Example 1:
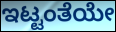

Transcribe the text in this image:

ಇಟ್ಟಂತೆಯೇ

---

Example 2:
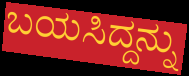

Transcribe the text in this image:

ಬಯಸಿದ್ದನ್ನು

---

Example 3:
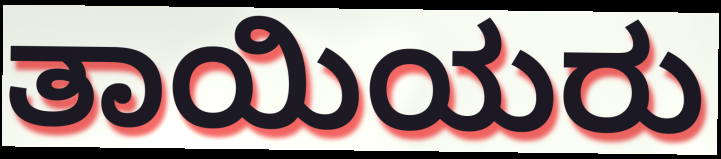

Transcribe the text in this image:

ತಾಯಿಯರು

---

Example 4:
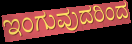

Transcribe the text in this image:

ಇಂಗುವುದರಿಂದ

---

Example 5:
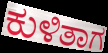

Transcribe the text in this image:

ಕುಳಿತಾಗ